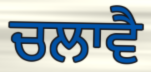
ਚਲਾਵੈ